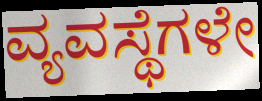
ವ್ಯವಸ್ಥೆಗಳೇ